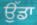
ਉੱਡਾ